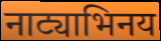
नाट्याभिनय